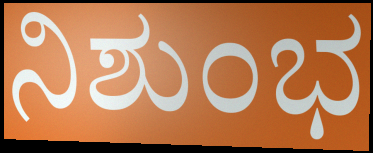
ನಿಶುಂಭ